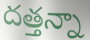
దత్తన్నా